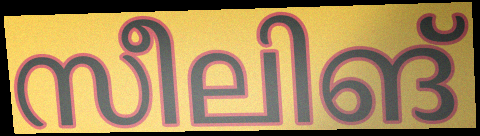
സീലിങ്